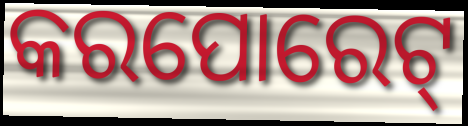
କରପୋରେଟ୍